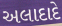
અલાદાદે